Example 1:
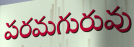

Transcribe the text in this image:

పరమగురువు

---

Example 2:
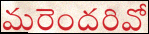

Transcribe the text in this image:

మరెందరివో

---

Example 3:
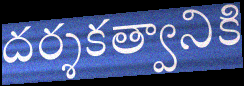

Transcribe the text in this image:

దర్శకత్వానికి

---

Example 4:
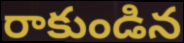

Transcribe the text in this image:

రాకుండిన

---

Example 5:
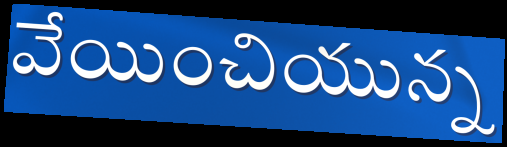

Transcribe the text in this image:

వేయించియున్న